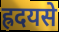
ह्रदयसे